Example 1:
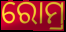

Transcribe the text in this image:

ରୋମ୍ର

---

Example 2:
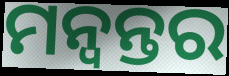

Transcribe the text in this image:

ମନ୍ୱନ୍ତର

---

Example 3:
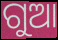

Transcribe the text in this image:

ଗୁଆ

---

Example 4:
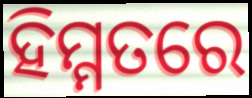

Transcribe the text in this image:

ହିମ୍ମତରେ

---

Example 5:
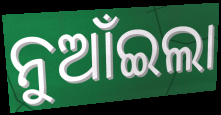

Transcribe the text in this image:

ନୁଆଁଇଲା